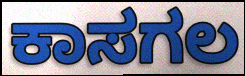
ಕಾಸಗಲ